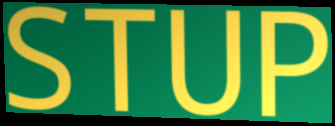
STUP